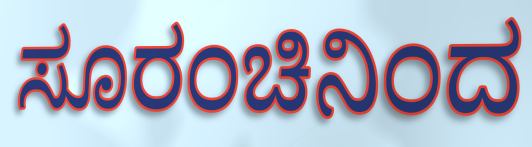
ಸೂರಂಚಿನಿಂದ